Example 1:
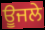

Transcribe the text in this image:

ਊਜਲੇ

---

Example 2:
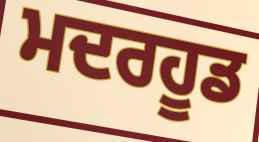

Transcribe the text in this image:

ਮਦਰਹੂਡ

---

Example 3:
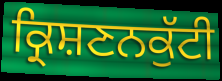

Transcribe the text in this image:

ਕ੍ਰਿਸ਼ਣਨਕੁੱਟੀ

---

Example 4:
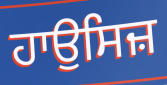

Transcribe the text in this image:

ਹਾਉਸਿਜ਼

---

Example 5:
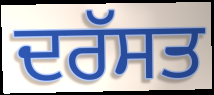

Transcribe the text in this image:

ਦਰੱਸਤ